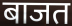
बाजत